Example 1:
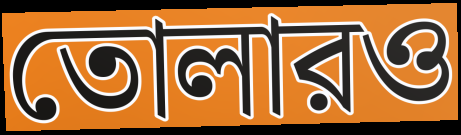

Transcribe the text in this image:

তোলারও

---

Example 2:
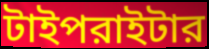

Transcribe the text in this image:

টাইপরাইটার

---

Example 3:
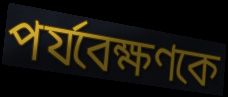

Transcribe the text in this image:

পর্যবেক্ষণকে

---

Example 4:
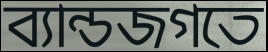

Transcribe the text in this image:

ব্যান্ডজগতে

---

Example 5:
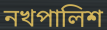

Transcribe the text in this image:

নখপালিশ